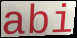
abi